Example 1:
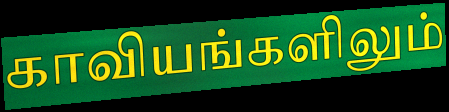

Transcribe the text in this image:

காவியங்களிலும்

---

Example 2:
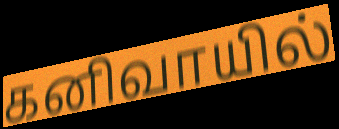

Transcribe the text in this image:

கனிவாயில்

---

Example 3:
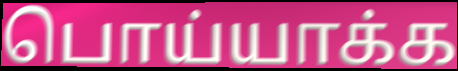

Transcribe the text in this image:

பொய்யாக்க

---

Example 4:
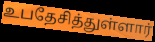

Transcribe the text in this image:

உபதேசித்துள்ளார்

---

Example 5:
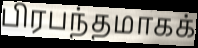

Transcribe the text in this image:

பிரபந்தமாகக்